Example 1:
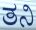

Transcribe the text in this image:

ತನಿ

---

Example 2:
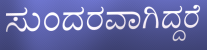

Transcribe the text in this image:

ಸುಂದರವಾಗಿದ್ದರೆ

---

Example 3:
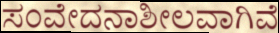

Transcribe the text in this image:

ಸಂವೇದನಾಶೀಲವಾಗಿವೆ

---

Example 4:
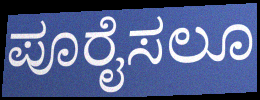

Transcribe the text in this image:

ಪೂರೈಸಲೂ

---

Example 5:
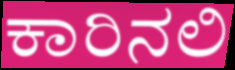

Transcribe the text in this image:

ಕಾರಿನಲಿ